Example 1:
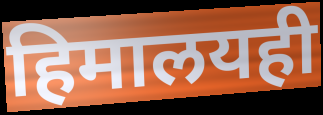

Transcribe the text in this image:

हिमालयही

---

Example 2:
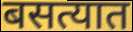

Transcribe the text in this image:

बसत्यात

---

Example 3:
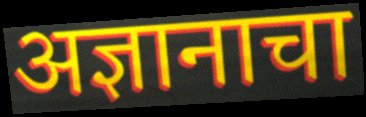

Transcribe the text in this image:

अज्ञानाचा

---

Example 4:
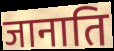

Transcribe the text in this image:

जानाति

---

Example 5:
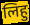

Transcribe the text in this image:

लिहु